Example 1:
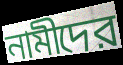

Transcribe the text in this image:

নামীদের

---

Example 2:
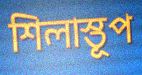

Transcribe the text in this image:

শিলাস্তূপ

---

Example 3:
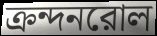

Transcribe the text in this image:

ক্রন্দনরোল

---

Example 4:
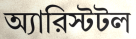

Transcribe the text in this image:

অ্যারিস্টটল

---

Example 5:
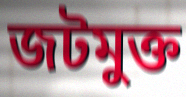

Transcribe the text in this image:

জটমুক্ত